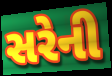
સરેની